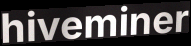
hiveminer